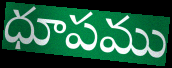
ధూపము